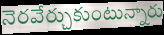
నెరవేర్చుకుంటున్నారు